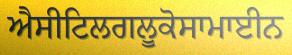
ਐਸੀਟਿਲਗਲੂਕੋਸਾਮਾਈਨ